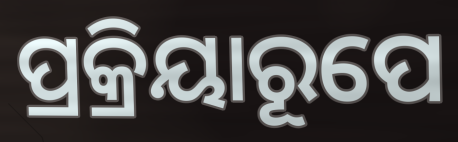
ପ୍ରକ୍ରିୟାରୂପେ